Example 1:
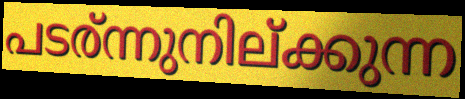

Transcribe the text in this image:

പടര്ന്നുനില്ക്കുന്ന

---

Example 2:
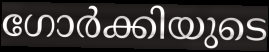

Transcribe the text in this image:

ഗോർക്കിയുടെ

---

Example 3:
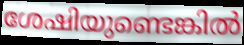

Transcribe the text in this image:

ശേഷിയുണ്ടെങ്കിൽ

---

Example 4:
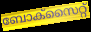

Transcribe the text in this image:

ബോക്സൈറ്റ്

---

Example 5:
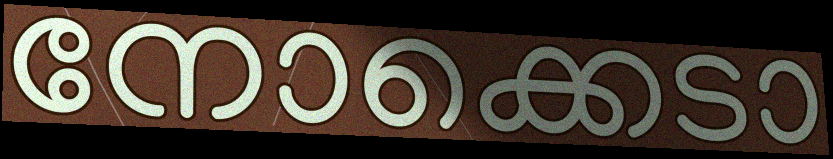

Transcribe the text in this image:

നോക്കെടാ